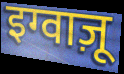
इग्वाज़ू